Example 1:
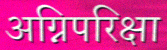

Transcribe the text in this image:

अग्निपरिक्षा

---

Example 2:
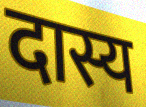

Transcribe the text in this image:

दास्य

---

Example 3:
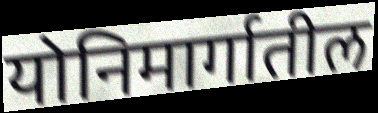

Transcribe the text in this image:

योनिमार्गातील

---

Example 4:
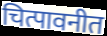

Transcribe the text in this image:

चित्पावनीत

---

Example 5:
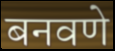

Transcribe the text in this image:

बनवणे